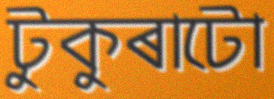
টুকুৰাটো